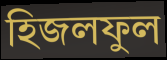
হিজলফুল